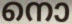
നൊ